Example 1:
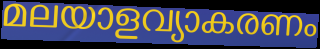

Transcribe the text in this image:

മലയാളവ്യാകരണം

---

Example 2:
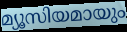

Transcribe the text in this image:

മ്യൂസിയമായും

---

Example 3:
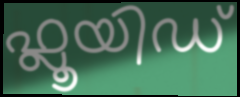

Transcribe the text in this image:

ഫ്ലൂയിഡ്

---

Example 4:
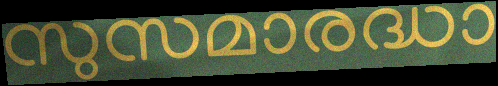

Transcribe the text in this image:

സുസമാരദ്ധാ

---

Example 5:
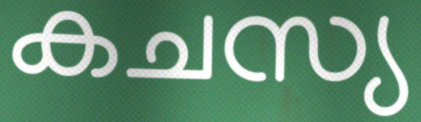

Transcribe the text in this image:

കചസ്യ